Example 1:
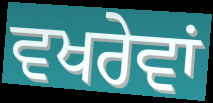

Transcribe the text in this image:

ਵਖਰੇਵਾਂ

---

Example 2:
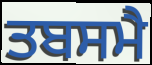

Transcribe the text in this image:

ਤਬਸਮੈ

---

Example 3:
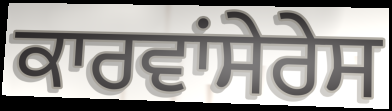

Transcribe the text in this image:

ਕਾਰਵਾਂਸੇਰੇਸ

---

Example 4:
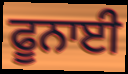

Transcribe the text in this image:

ਫੂਨਾਈ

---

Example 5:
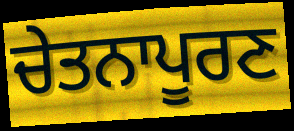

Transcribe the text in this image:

ਚੇਤਨਾਪੂਰਣ